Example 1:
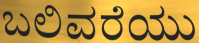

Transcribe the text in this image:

ಬಲಿವರೆಯು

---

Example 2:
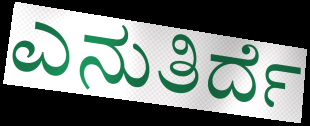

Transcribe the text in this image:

ಎನುತಿರ್ದೆ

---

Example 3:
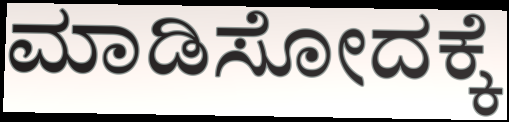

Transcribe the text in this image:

ಮಾಡಿಸೋದಕ್ಕೆ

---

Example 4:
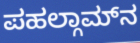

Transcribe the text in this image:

ಪಹಲ್ಗಾಮ್‌ನ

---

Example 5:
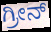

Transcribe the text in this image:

ಗ್ರೀನ್